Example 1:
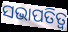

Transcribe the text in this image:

ସଭାପତିତ୍ଵ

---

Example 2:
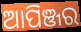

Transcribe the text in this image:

ଆପିଞ୍ଜର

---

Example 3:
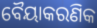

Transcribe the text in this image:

ବୈୟାକରଣିକ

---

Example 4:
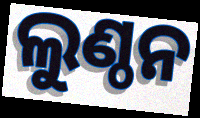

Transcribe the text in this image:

ଲୁଣ୍ଠନ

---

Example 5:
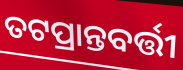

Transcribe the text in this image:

ତଟପ୍ରାନ୍ତବର୍ତ୍ତୀ